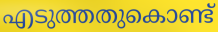
എടുത്തതുകൊണ്ട്